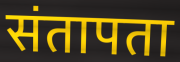
संतापता